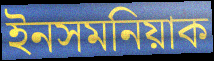
ইনসমনিয়াক